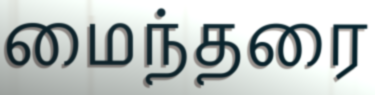
மைந்தரை